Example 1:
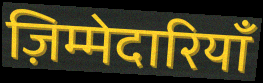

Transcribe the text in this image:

ज़िम्मेदारियाँ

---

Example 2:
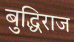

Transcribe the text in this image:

बुद्धिराज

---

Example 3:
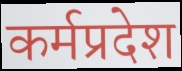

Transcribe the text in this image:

कर्मप्रदेश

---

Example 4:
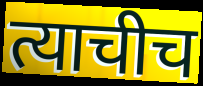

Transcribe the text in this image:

त्याचीच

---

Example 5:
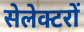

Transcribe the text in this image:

सेलेक्टरों